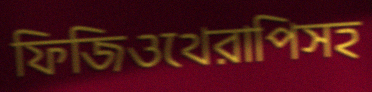
ফিজিওথেরাপিসহ